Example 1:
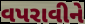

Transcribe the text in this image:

વપરાવીને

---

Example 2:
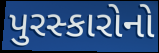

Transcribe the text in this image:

પુરસ્કારોનો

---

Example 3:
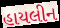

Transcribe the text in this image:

હાયલીન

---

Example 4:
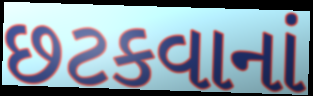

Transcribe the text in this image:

છટકવાનાં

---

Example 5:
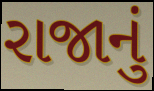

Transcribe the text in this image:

રાજાનું